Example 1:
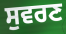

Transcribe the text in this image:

ਸੁਵਰਣ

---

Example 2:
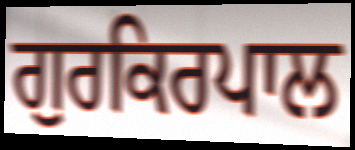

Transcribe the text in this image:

ਗੁਰਕਿਰਪਾਲ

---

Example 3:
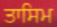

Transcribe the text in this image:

ਤਾਸਿਮ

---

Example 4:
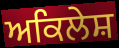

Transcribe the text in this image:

ਅਕਿਲੇਸ਼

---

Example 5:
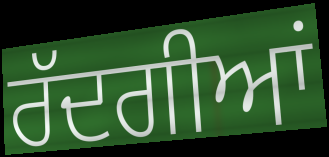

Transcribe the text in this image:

ਰੱਦਗੀਆਂ